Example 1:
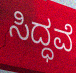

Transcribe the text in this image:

ಸಿದ್ಧವೆ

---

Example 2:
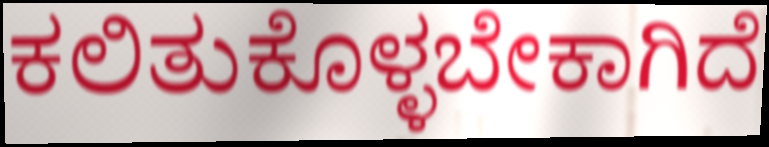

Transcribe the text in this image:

ಕಲಿತುಕೊಳ್ಳಬೇಕಾಗಿದೆ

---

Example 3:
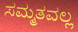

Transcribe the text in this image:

ಸಮ್ಮತವಲ್ಲ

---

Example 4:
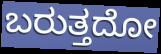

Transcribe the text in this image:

ಬರುತ್ತದೋ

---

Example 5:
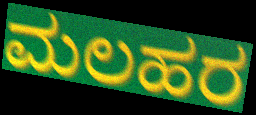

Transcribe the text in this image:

ಮಲಹರ